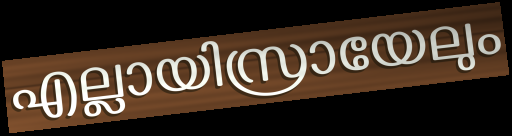
എല്ലായിസ്രായേലും